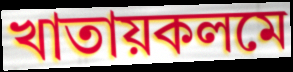
খাতায়কলমে